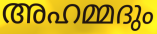
അഹമ്മദും